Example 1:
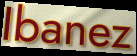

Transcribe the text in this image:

Ibanez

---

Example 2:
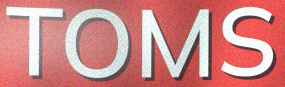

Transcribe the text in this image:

TOMS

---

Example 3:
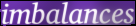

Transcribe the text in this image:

imbalances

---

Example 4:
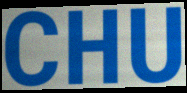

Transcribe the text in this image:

CHU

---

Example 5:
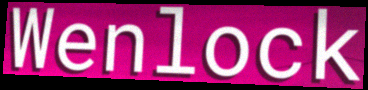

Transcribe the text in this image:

Wenlock